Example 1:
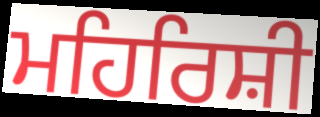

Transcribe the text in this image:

ਮਹਿਰਿਸ਼ੀ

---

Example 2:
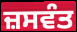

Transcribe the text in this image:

ਜ਼ਸਵੰਤ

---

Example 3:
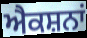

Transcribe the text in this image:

ਐਕਸ਼ਨਾਂ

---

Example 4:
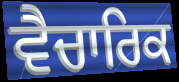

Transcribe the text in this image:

ਵੈਚਾਰਿਕ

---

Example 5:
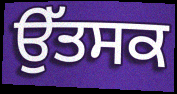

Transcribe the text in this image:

ਉੱਤਸਕ